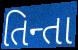
તિન્તા